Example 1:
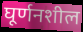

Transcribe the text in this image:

घूर्णनशील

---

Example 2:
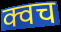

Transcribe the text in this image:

क्वच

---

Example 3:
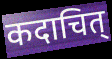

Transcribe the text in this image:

कदाचित्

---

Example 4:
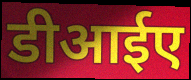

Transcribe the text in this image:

डीआईए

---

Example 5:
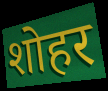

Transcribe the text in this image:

शोहर